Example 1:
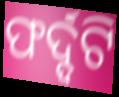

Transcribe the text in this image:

ଫର୍ଦ୍ଦଟି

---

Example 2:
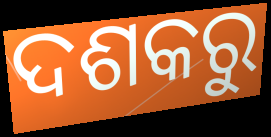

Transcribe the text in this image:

ଦଶକରୁ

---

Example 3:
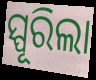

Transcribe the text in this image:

ସ୍ପୂରିଲା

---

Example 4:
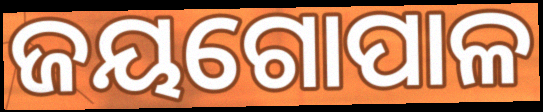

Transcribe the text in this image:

ଜୟଗୋପାଳ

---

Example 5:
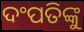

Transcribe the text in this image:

ଦଂପତିଙ୍କୁ